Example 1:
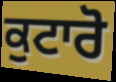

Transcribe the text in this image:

ਕੁਟਾਰੋ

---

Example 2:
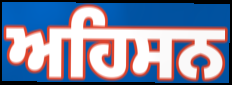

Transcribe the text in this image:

ਅਹਿਸਨ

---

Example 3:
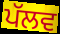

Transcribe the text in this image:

ਪੱਲਵ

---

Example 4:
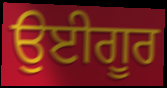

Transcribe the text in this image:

ਉਈਗੂਰ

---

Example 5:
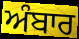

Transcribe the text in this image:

ਅੰਬਾਰ